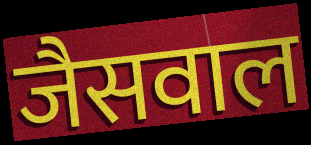
जैसवाल